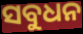
ସବୁଧନ